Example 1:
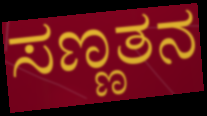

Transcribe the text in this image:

ಸಣ್ಣತನ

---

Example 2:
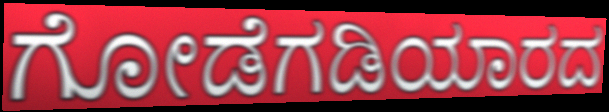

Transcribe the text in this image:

ಗೋಡೆಗಡಿಯಾರದ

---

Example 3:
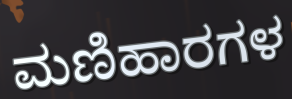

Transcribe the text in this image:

ಮಣಿಹಾರಗಳ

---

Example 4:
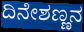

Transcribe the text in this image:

ದಿನೇಶಣ್ಣನ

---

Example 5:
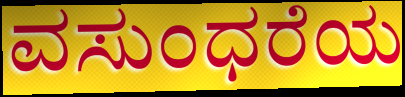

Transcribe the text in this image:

ವಸುಂಧರೆಯ